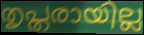
തൃപ്തരായില്ല